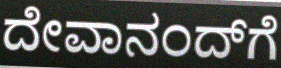
ದೇವಾನಂದ್‌ಗೆ